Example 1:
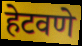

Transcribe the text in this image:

हेटवणे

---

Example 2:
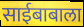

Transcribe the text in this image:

साईबाबाला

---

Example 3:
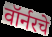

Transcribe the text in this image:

वॉर्नरचे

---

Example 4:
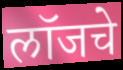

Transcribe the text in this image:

लॉजचे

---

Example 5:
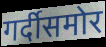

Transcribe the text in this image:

गर्दीसमोर